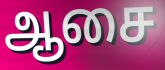
ஆசை